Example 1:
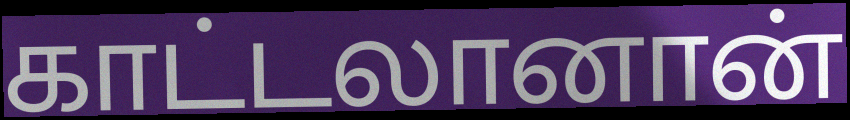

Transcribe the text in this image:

காட்டலானான்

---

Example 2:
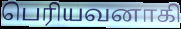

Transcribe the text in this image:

பெரியவனாகி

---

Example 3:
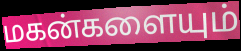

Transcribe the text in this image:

மகன்களையும்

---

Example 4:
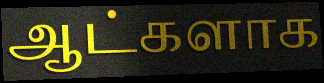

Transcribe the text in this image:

ஆட்களாக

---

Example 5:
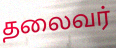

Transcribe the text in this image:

தலைவர்